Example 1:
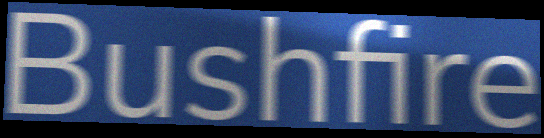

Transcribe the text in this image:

Bushfire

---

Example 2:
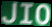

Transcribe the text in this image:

JIO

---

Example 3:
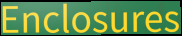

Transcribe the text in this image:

Enclosures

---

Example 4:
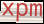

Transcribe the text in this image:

xpm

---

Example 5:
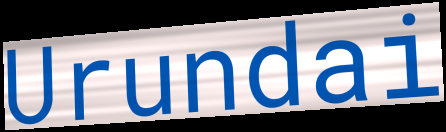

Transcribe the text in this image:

Urundai